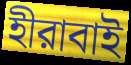
হীরাবাই